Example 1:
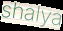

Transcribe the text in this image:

shalya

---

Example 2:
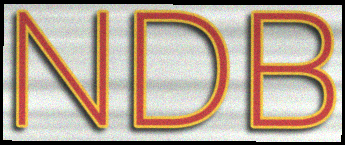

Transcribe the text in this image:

NDB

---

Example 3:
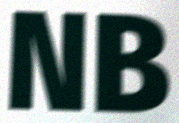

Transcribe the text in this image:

NB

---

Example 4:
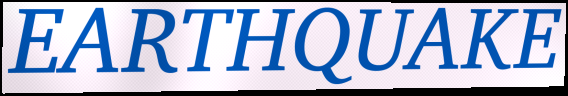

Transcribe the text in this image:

EARTHQUAKE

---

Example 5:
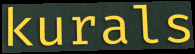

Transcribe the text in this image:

kurals